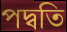
পদ্বতি